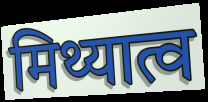
मिथ्‍यात्‍व